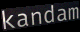
kandam